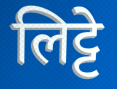
लिट्टे